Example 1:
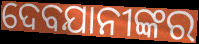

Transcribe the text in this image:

ଦେବଯାନୀଙ୍କର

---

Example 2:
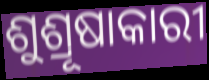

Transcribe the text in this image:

ଶୁଶ୍ରୂଷାକାରୀ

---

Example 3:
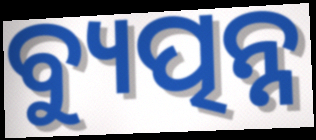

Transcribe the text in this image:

ବ୍ୟୁତ୍ପନ୍ନ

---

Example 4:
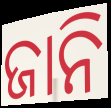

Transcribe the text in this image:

ଜାନି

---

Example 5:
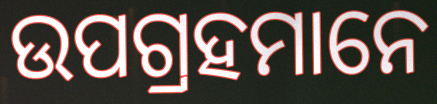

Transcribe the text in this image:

ଉପଗ୍ରହମାନେ